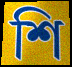
শি